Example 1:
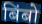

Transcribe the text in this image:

बिंबो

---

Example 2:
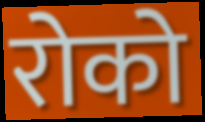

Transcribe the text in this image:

रोको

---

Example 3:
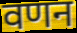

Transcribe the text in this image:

वणन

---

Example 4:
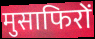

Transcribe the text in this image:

मुसाफिरों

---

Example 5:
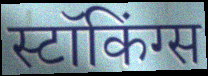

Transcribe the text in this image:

स्टॉकिंग्स